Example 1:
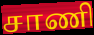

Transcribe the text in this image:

சாணி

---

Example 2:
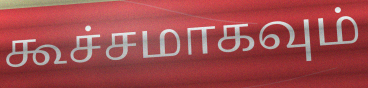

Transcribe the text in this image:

கூச்சமாகவும்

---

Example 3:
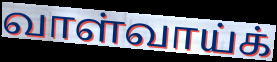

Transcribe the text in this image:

வாள்வாய்க்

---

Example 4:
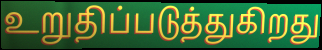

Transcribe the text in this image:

உறுதிப்படுத்துகிறது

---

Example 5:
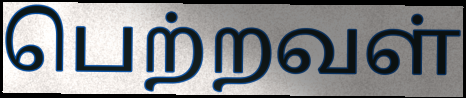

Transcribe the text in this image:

பெற்றவள்